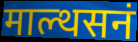
माल्थसनं